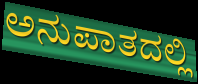
ಅನುಪಾತದಲ್ಲಿ